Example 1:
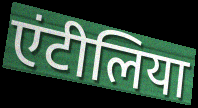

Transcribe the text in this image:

एंटीलिया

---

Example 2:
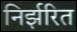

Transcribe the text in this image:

निर्झरित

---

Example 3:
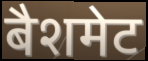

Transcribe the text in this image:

बैशमेट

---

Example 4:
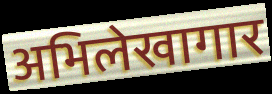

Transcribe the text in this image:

अभिलेखागार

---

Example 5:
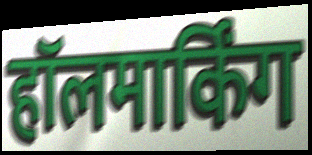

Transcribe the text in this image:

हॉलमार्किंग